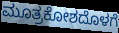
ಮೂತ್ರಕೋಶದೊಳಗೆ